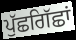
ਪੁੱਛਗਿੱਛਾਂ